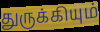
துருக்கியும்